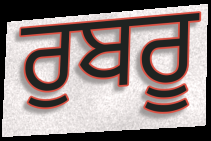
ਰੁਬਰੂ